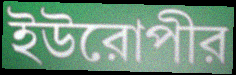
ইউরোপীর